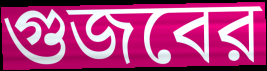
গুজবের